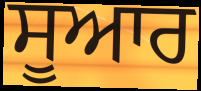
ਸੂਆਰ